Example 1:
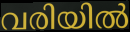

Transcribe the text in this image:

വരിയിൽ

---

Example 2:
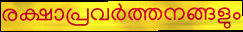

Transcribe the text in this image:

രക്ഷാപ്രവർത്തനങ്ങളും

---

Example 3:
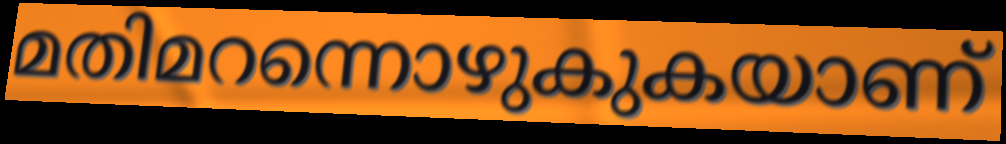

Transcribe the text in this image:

മതിമറന്നൊഴുകുകയാണ്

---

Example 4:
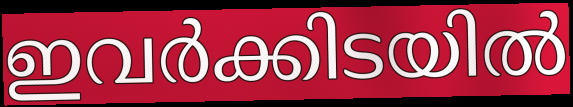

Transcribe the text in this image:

ഇവർക്കിടയിൽ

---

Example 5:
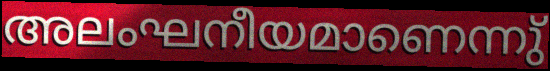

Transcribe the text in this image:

അലംഘനീയമാണെന്നു്